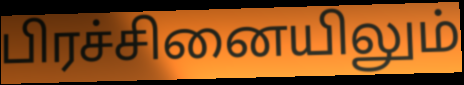
பிரச்சினையிலும்